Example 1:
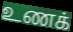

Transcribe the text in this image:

உணக்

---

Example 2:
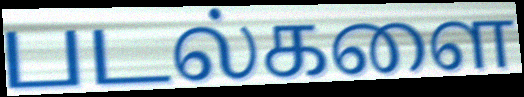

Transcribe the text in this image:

படல்களை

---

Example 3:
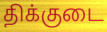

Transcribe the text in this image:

திக்குடை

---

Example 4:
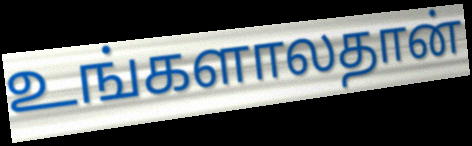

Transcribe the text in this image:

உங்களாலதான்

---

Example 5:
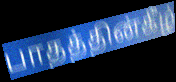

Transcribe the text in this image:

பாதத்தின்கீழ்